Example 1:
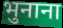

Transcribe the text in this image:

भुनाना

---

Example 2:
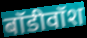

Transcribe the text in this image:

बॉडीवॉश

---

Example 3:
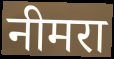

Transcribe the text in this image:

नीमरा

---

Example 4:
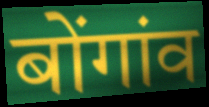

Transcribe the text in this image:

बोंगांव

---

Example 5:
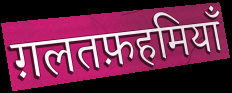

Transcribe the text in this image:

ग़लतफ़हमियाँ